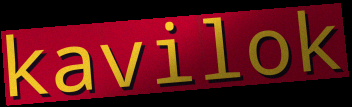
kavilok